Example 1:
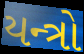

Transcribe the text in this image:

યન્ત્રો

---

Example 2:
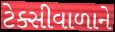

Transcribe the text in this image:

ટેક્સીવાળાને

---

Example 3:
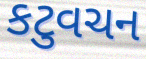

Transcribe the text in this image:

કટુવચન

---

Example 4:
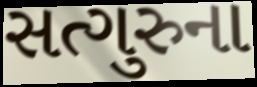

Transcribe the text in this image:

સત્ગુરુના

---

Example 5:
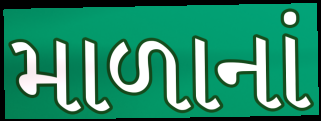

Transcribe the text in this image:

માળાનાં